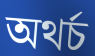
অথৰ্চ